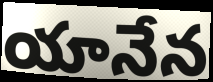
యానేన